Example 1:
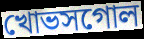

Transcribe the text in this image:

খোভসগোল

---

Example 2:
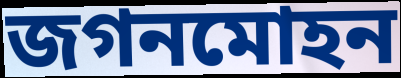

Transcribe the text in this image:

জগনমোহন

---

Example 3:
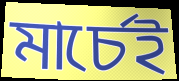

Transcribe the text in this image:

মার্চেই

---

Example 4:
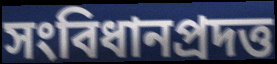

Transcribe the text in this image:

সংবিধানপ্রদত্ত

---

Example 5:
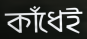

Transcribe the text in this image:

কাঁধেই